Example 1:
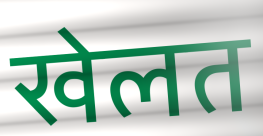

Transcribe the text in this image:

खेलत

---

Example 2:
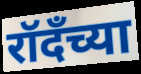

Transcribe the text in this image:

रॉदँच्या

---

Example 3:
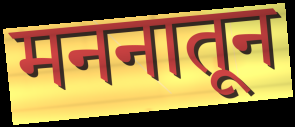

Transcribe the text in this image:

मननातून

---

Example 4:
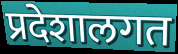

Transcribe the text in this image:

प्रदेशालगत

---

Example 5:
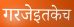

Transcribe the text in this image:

गरजेइतकेच